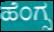
ಹೆಂಗ್ಸ